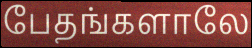
பேதங்களாலே